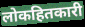
लोकहितकारी